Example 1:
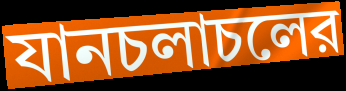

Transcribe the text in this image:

যানচলাচলের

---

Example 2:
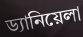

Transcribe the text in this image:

ড্যানিয়েলা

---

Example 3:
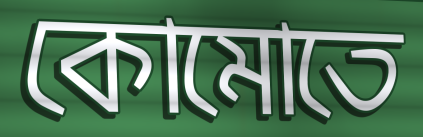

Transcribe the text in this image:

কোমোতে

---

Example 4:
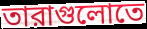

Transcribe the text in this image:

তারাগুলোতে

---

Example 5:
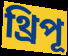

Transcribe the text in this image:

থ্রিপূ